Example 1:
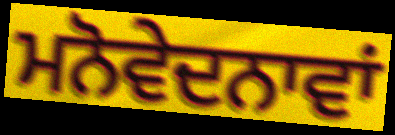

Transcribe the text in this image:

ਮਨੋਵੇਦਨਾਵਾਂ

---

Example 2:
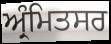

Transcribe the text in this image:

ਅ੍ਰੰਮਿਤਸਰ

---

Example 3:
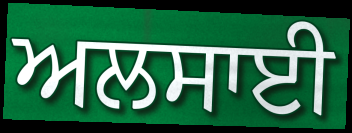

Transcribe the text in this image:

ਅਲਸਾਈ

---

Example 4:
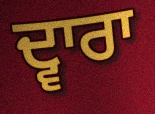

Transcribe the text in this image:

ਦ੍ਵਾਰਾ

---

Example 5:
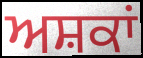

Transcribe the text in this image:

ਅਸ਼ਕਾਂ